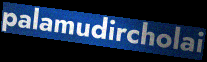
palamudircholai